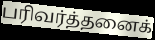
பரிவர்த்தனைக்